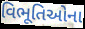
વિભૂતિઓના